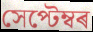
সেপ্টেম্বৰ